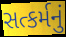
સત્કર્મનું